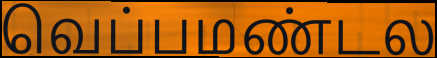
வெப்பமண்டல